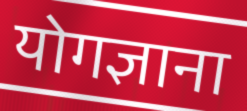
योगज्ञाना